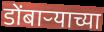
डोंबाऱ्याच्या